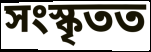
সংস্কৃতত